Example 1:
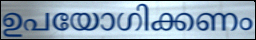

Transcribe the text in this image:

ഉപയോഗിക്കണം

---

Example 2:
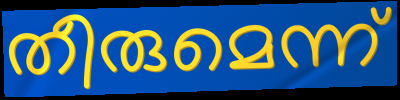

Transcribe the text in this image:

തീരുമെന്ന്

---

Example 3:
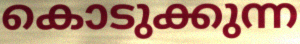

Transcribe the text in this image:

കൊടുക്കുന്ന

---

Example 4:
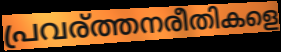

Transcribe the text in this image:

പ്രവര്ത്തനരീതികളെ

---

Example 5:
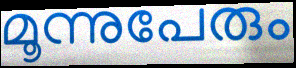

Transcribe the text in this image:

മൂന്നുപേരും